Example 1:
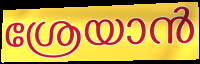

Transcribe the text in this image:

ശ്രേയാൻ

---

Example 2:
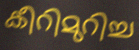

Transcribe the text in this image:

കീറിമുറിച്ച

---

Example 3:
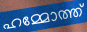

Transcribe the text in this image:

ഹമ്മോത്ത്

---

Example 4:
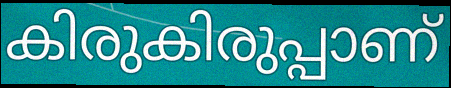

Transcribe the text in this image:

കിരുകിരുപ്പാണ്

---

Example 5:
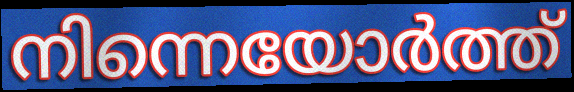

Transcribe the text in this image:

നിന്നെയോർത്ത്